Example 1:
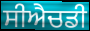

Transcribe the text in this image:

ਸੀਐਚਡੀ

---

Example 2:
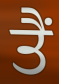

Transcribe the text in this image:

ਤੈਂ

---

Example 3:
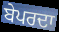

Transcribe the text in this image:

ਬੇਪਰਦਾ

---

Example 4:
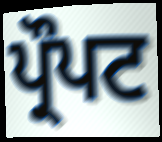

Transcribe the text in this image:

ਪ੍ਰੌਪਟ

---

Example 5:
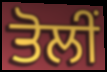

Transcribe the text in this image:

ਤੋਲੀਂ